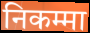
निकम्मा